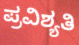
ಪ್ರವಿಶ್ಯತಿ